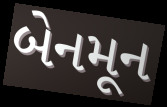
બેનમૂન